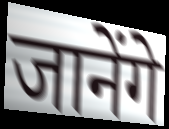
जानेंगे